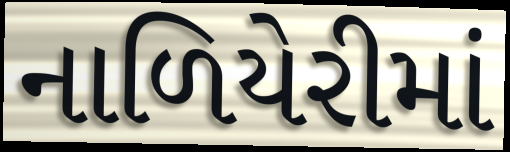
નાળિયેરીમાં